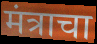
मंत्राचा